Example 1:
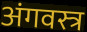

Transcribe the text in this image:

अंगवस्त्र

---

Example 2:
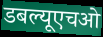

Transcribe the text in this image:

डबल्यूएचओ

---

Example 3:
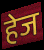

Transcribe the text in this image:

हेज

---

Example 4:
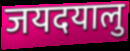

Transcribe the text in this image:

जयदयालु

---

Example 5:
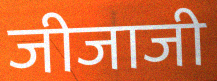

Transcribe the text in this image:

जीजाजी